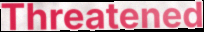
Threatened